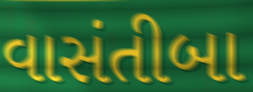
વાસંતીબા